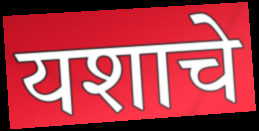
यशाचे